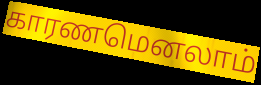
காரணமெனலாம்